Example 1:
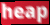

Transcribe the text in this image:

heap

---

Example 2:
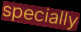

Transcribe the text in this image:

specially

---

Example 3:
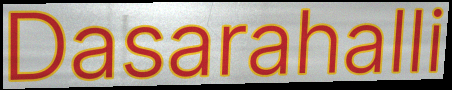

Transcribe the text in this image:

Dasarahalli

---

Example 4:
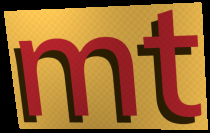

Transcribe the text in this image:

mt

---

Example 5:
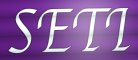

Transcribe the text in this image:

SETI